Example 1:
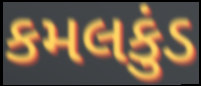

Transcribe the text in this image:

કમલકુંડ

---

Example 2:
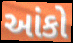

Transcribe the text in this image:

આંકો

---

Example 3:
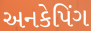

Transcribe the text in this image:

અનકેપિંગ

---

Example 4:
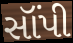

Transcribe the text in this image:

સૉંપી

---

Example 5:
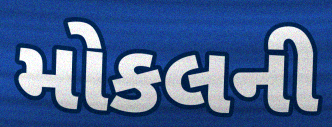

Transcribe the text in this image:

મોકલની